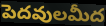
పెదవులమీద